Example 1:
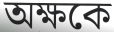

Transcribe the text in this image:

অক্ষকে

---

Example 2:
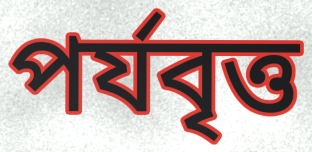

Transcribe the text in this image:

পর্যবৃত্ত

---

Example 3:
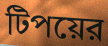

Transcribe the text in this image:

টিপয়ের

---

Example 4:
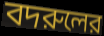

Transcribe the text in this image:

বদরুলের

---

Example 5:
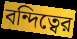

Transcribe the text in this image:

বন্দিত্বের